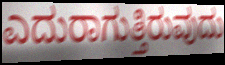
ಎದುರಾಗುತ್ತಿರುವುದು